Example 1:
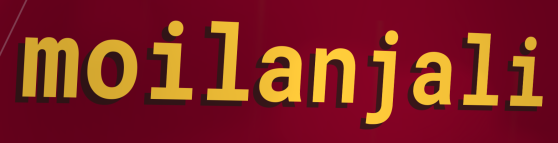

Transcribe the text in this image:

moilanjali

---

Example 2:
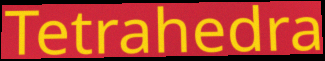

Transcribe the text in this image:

Tetrahedra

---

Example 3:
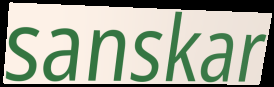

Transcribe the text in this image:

sanskar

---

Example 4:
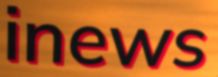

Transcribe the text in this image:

inews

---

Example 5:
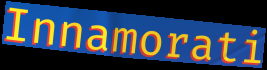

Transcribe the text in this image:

Innamorati